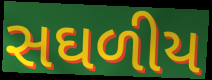
સઘળીય